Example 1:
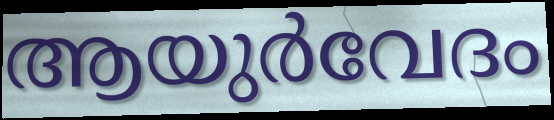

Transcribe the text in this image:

ആയുർവേദം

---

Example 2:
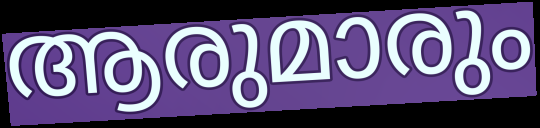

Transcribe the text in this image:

ആരുമാരും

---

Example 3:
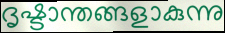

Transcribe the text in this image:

ദൃഷ്ടാന്തങ്ങളാകുന്നു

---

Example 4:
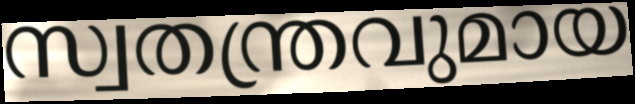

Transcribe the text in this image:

സ്വതന്ത്രവുമായ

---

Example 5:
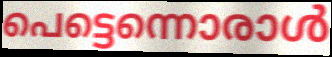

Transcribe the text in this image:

പെട്ടെന്നൊരാൾ